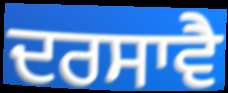
ਦਰਸਾਵੈ